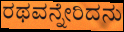
ರಥವನ್ನೇರಿದನು